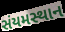
સંયમસ્થાન